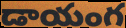
డాయంగ